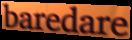
baredare